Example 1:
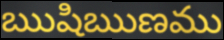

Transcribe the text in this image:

ఋషిఋణము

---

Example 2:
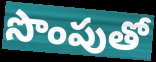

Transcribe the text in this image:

సొంపుతో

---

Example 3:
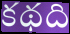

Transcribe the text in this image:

కథది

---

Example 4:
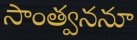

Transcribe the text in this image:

సాంత్వననూ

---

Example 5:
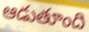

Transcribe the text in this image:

ఆడుతూంది